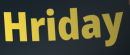
Hriday